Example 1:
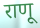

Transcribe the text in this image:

राणू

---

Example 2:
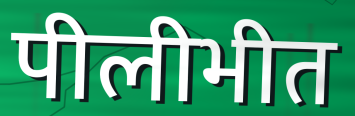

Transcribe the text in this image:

पीलीभीत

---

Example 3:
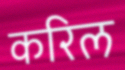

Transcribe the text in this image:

करिल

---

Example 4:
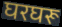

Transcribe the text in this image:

घरघरू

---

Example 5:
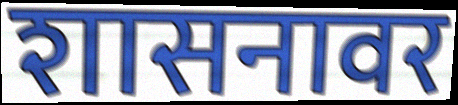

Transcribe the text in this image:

शासनावर